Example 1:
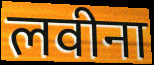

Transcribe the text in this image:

लवीना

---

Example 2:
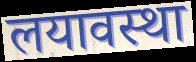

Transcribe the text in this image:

लयावस्था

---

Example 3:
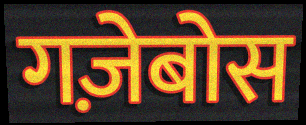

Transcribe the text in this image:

गज़ेबोस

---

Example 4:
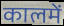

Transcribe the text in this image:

कालमें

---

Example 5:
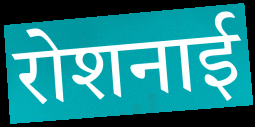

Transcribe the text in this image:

रोशनाई